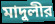
মাদুলীর